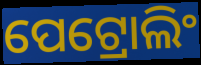
ପେଟ୍ରୋଲିଂ